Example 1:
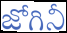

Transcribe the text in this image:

జోగినీ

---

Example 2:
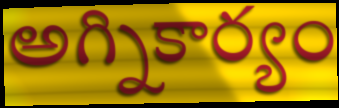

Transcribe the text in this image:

అగ్నికార్యం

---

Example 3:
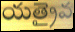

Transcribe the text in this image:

యత్రైవ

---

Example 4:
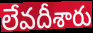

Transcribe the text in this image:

లేవదీశారు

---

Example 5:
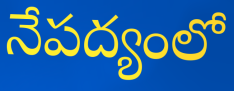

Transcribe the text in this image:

నేపద్యంలో